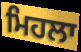
ਮਿਹਲਾ